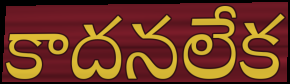
కాదనలేక